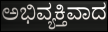
ಅಭಿವ್ಯಕ್ತಿವಾದ